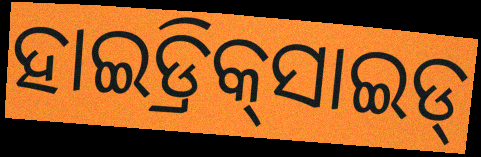
ହାଇଡ୍ରିକ୍‌ସାଇଡ୍